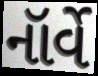
નૉર્વે